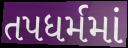
તપધર્મમાં